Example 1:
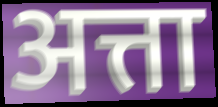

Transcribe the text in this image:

अत्ता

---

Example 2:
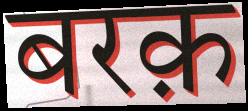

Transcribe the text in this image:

बरक़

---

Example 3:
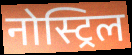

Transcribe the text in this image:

नोस्ट्रिल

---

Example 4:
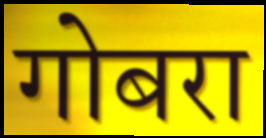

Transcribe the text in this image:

गोबरा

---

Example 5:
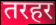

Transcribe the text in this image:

तरहर